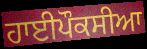
ਹਾਈਪੌਕਸੀਆ